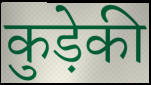
कुड़ेकी